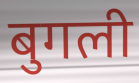
बुगली